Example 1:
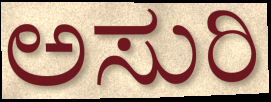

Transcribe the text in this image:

ಅಸುರಿ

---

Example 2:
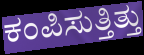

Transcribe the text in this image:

ಕಂಪಿಸುತ್ತಿತ್ತು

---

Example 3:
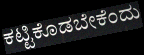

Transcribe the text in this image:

ಕಟ್ಟಿಕೊಡಬೇಕೆಂದು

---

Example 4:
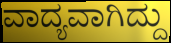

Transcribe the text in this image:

ವಾದ್ಯವಾಗಿದ್ದು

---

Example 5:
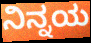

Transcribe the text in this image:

ನಿನ್ನಯ